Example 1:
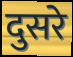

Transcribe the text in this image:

दुसरे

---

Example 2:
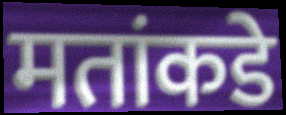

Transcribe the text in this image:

मतांकडे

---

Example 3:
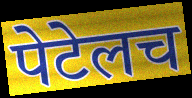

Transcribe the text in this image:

पेटेलच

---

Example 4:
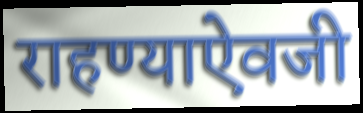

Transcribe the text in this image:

राहण्याऐवजी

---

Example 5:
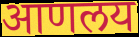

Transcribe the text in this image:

आणलय